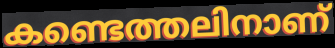
കണ്ടെത്തലിനാണ്